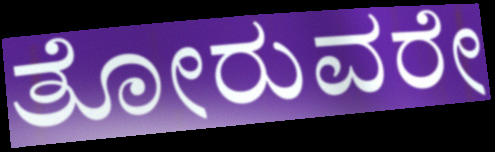
ತೋರುವರೇ